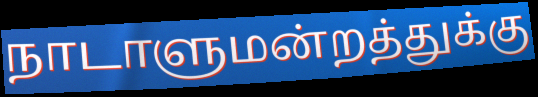
நாடாளுமன்றத்துக்கு